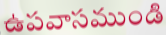
ఉపవాసముండి